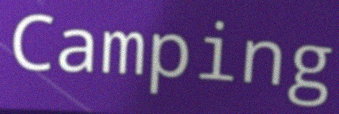
Camping